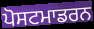
ਪੋਸਟਮਾਡਰਨ